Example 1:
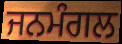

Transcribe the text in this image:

ਜਨਮੰਗਲ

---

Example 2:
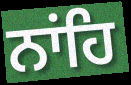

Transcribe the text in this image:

ਨਾਂਹਿ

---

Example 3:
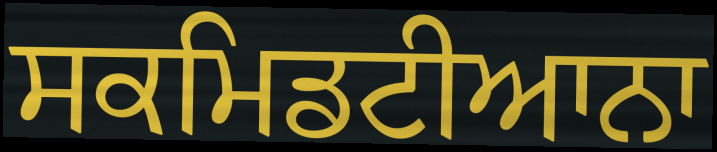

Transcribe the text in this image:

ਸਕਮਿਡਟੀਆਨਾ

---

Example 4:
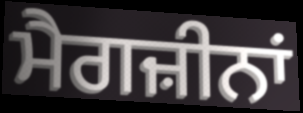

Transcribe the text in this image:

ਮੈਗਜ਼ੀਨਾਂ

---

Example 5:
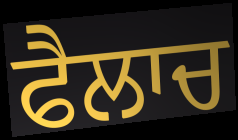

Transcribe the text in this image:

ਫੈਲਾਚ